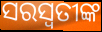
ସରସ୍ବତୀଙ୍କ